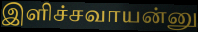
இளிச்சவாயன்னு